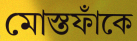
মোস্তফাঁকে